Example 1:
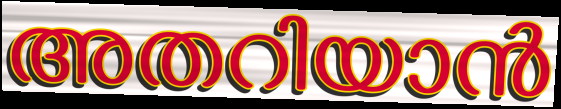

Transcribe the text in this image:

അതറിയാൻ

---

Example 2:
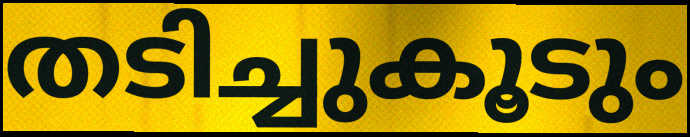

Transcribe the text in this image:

തടിച്ചുകൂടും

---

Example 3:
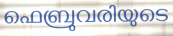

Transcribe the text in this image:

ഫെബ്രുവരിയുടെ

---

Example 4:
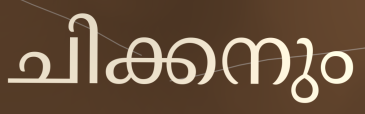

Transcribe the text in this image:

ചിക്കനും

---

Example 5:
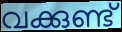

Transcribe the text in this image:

വക്കുണ്ട്